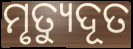
ମୃତ୍ୟୁଦୂତ